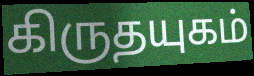
கிருதயுகம்